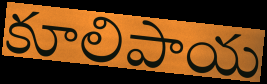
కూలిపాయ